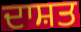
ਦਾਸ਼ਤ